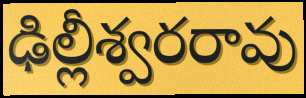
ఢిల్లీశ్వరరావు